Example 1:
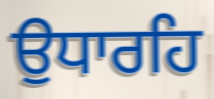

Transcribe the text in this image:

ਉਧਾਰਹਿ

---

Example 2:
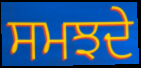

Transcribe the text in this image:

ਸਮਝਦੇ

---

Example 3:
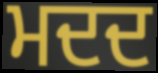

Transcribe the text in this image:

ਮਦਦ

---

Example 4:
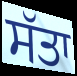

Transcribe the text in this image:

ਸੱਤਾ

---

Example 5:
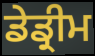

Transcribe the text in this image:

ਡੇਡ੍ਰੀਮ